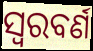
ସ୍ଵରବର୍ଣ